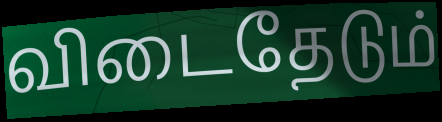
விடைதேடும்